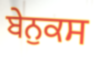
ਬੇਨੁਕਸ